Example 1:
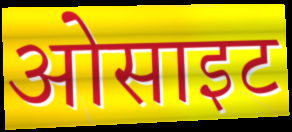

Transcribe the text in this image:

ओसाइट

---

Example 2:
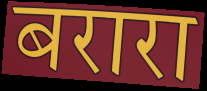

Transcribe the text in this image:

बरारा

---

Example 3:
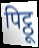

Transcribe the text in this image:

पिट्ठू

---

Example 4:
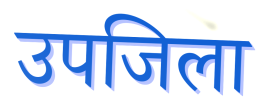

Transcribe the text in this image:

उपजिला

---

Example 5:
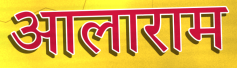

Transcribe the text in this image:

आलाराम